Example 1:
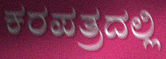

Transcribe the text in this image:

ಕರಪತ್ರದಲ್ಲಿ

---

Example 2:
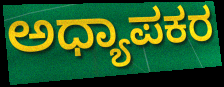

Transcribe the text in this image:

ಅಧ್ಯಾಪಕರ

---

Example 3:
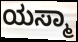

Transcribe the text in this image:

ಯಸ್ಮಾ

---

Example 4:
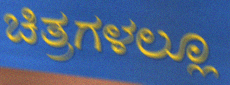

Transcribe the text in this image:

ಚಿತ್ರಗಳಲ್ಲೂ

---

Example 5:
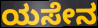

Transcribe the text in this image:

ಯಸೇನ